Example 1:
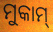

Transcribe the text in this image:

ମୁକାମ୍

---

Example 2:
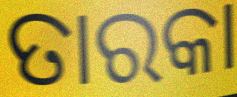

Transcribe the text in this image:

ତାରକା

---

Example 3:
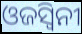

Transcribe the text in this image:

ଓଜସ୍ଵିନୀ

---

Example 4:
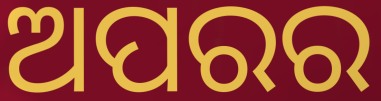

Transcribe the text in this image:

ଅପରର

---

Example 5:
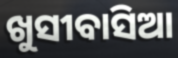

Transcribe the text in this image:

ଖୁସୀବାସିଆ